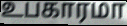
உபகாரமா